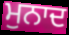
ਮੁਨਾਦ